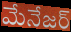
మేనేజర్